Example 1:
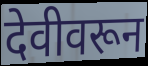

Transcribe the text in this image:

देवीवरून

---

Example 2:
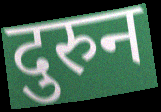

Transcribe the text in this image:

दुरुन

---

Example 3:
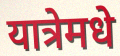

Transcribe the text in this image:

यात्रेमधे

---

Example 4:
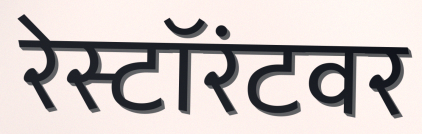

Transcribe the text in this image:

रेस्टॉरंटवर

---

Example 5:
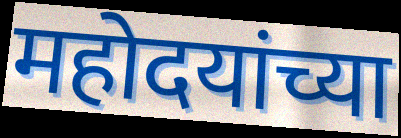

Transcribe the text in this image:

महोदयांच्या